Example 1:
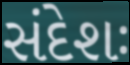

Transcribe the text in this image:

સંદેશઃ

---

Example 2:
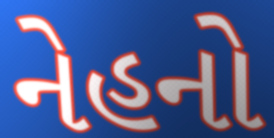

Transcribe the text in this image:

નેહનો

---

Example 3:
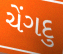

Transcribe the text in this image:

ચેંગદુ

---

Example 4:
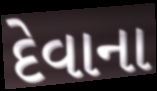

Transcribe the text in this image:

દેવાના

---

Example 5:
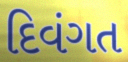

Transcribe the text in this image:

દિવંગત